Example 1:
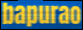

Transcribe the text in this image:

bapurao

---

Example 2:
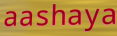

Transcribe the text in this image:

aashaya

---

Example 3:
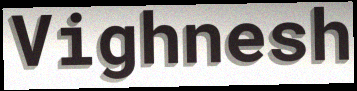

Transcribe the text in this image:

Vighnesh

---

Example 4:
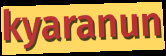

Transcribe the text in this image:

kyaranun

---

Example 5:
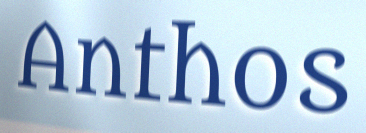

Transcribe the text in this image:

Anthos